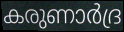
കരുണാർദ്ര